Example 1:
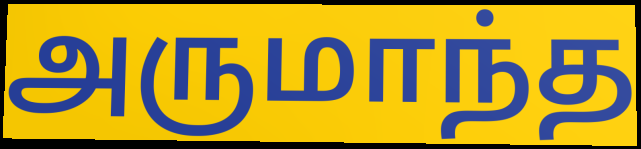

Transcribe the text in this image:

அருமாந்த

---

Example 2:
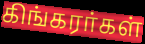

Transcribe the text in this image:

கிங்கரர்கள்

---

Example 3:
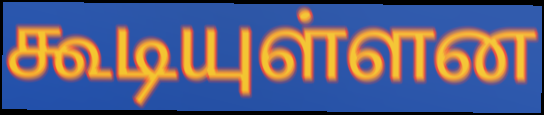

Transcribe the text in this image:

கூடியுள்ளன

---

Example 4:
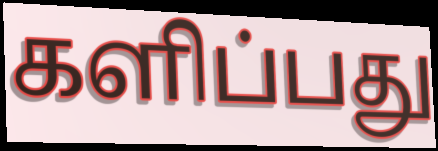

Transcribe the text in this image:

களிப்பது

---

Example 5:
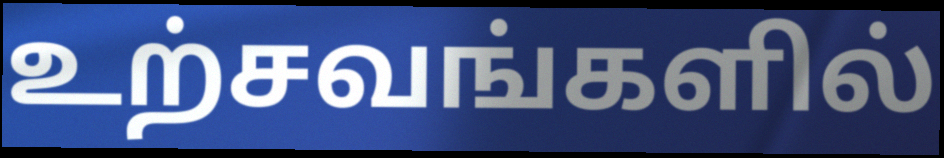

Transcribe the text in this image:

உற்சவங்களில்